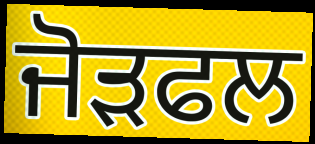
ਜੋੜਫਲ